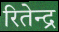
रितेन्द्र